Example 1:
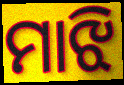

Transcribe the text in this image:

ମାଝି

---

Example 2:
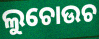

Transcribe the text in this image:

ଲୁଚୋଉଚ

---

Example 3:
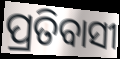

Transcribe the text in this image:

ପ୍ରତିବାସୀ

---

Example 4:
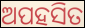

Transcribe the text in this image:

ଅପହସିତ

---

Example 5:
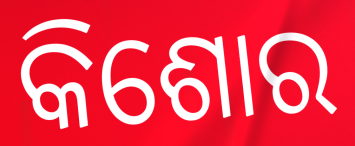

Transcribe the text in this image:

କିଶୋର